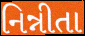
નિન્નીતા